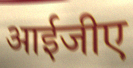
आईजीए